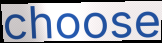
choose